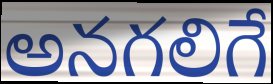
అనగలిగే